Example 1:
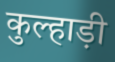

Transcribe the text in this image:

कुल्‍हाड़ी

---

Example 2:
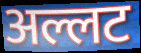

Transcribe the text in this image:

अल्लट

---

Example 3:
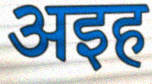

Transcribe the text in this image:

अइह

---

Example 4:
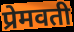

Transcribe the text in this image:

प्रेमवती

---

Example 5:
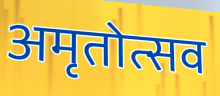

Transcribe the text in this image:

अमृतोत्सव